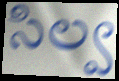
సిల్వ